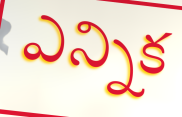
ఎన్నిక